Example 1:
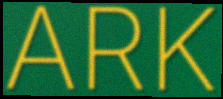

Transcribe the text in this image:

ARK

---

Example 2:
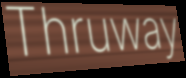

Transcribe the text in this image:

Thruway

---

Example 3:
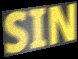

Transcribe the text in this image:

SIN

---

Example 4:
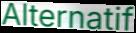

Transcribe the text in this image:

Alternatif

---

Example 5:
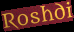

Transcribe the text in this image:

Roshdi